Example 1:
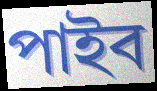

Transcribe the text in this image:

পাইব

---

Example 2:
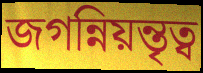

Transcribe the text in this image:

জগন্নিয়ন্তৃত্ব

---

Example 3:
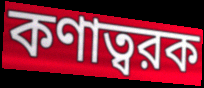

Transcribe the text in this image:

কণাত্বরক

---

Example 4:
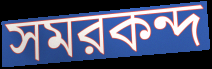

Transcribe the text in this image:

সমরকন্দ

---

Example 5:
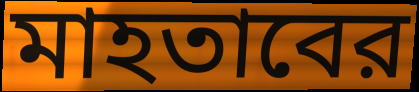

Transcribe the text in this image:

মাহতাবের